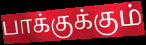
பாக்குக்கும்